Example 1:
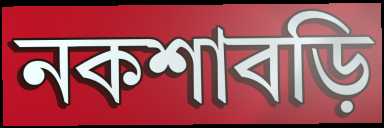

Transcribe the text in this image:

নকশাবড়ি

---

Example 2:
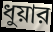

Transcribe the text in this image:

ধুয়ার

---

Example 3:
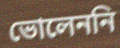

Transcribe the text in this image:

ভোলেননি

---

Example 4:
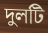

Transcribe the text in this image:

দুলটি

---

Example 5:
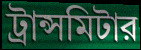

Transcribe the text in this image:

ট্রান্সমিটার